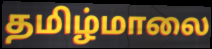
தமிழ்மாலை